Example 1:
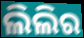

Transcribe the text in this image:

ଲିଲିର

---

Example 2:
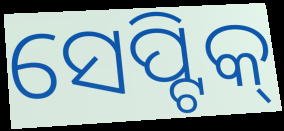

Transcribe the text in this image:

ସେପ୍ଟିକ୍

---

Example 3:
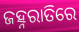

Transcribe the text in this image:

ଜହ୍ନରାତିରେ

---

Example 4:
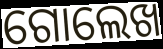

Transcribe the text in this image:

ଗୋଲେଖ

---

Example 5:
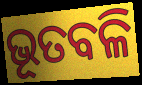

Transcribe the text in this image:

ଭୂତବଳି